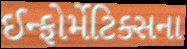
ઈન્ફોર્મેટિક્સના